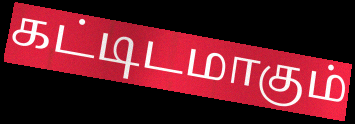
கட்டிடமாகும்